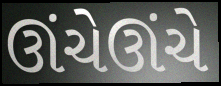
ઊંચેઊંચે